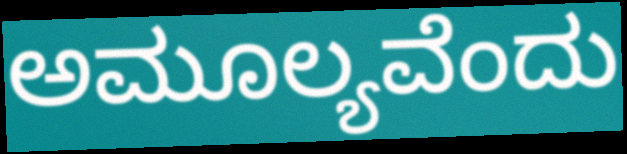
ಅಮೂಲ್ಯವೆಂದು